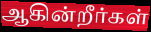
ஆகின்றீர்கள்